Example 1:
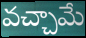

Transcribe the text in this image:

వచ్చామే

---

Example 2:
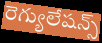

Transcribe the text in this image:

రెగ్యులేషన్స్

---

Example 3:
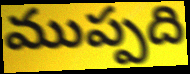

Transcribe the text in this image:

ముప్పది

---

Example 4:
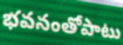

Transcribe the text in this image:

భవనంతోపాటు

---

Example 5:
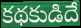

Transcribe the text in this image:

కథకుడిదే